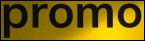
promo